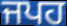
ਜਪਹ